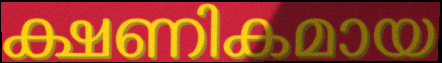
ക്ഷണികമായ